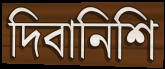
দিবানিশি